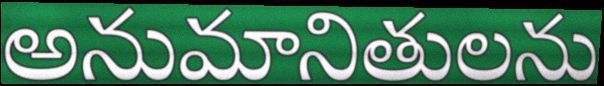
అనుమానితులను